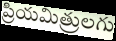
ప్రియమిత్రులగు